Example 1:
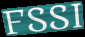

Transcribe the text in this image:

FSSI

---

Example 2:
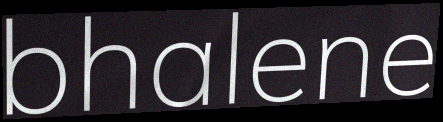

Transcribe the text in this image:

bhalene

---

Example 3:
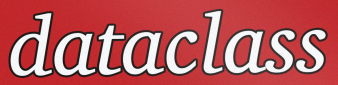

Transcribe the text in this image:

dataclass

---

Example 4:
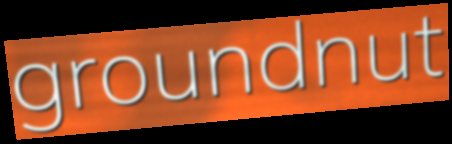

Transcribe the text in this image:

groundnut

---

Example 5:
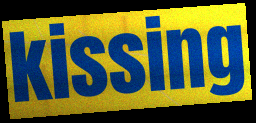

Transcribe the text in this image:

kissing